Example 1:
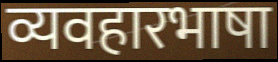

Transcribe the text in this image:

व्यवहारभाषा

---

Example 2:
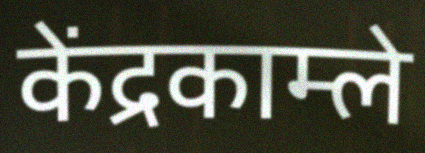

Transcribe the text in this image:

केंद्रकाम्ले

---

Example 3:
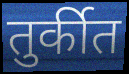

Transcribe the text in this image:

तुर्कीत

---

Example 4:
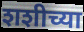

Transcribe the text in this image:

शशीच्या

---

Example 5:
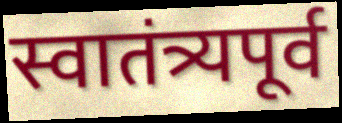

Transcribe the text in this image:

स्वातंत्र्यपूर्व